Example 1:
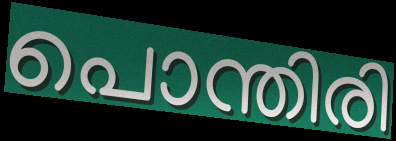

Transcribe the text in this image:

പൊന്തിരി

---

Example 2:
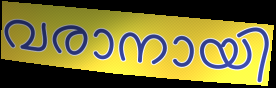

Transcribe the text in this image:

വരാനായി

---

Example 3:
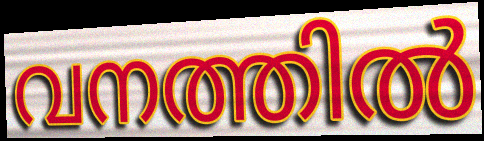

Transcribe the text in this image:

വനത്തിൽ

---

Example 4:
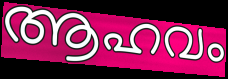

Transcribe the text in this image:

ആഹവം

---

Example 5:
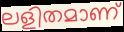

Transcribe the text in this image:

ലളിതമാണ്